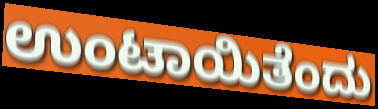
ಉಂಟಾಯಿತೆಂದು